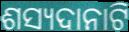
ଶସ୍ୟଦାନାଟି